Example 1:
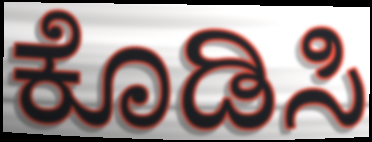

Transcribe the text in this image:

ಕೊಡಿಸಿ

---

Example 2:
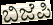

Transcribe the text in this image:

ಬಿಜೆಪಿ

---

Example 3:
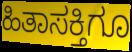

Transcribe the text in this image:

ಹಿತಾಸಕ್ತಿಗೂ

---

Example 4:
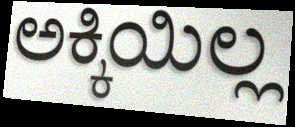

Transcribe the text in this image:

ಅಕ್ಕಿಯಿಲ್ಲ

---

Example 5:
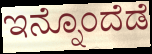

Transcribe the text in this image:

ಇನ್ನೊಂದೆಡೆ